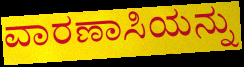
ವಾರಣಾಸಿಯನ್ನು